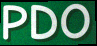
PDO